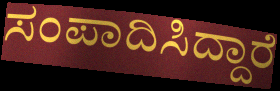
ಸಂಪಾದಿಸಿದ್ದಾರೆ